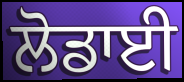
ਲੋਡਾਈ